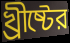
খ্রীষ্টের